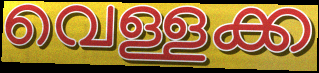
വെള്ളക്ക